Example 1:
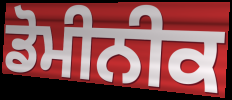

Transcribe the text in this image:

ਡੋਮੀਨੀਕ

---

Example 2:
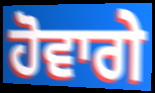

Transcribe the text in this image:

ਹੋਵਾਗੇ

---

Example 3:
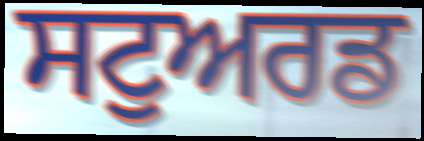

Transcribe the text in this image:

ਸਟੁਅਰਡ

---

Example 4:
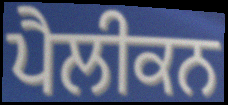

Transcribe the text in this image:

ਪੈਲੀਕਨ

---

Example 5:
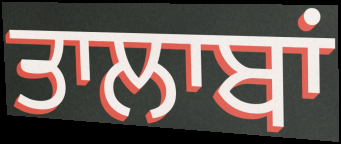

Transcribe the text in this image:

ਤਾਲਾਬਾਂ